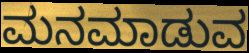
ಮನಮಾಡುವ